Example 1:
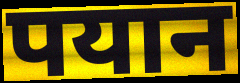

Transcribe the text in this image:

पयान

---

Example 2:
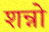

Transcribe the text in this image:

शन्नो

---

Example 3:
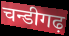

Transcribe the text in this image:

चन्डीगढ़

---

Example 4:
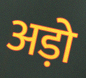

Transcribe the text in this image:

अड़ो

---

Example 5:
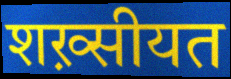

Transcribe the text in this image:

शख़्सीयत